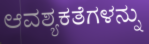
ಆವಶ್ಯಕತೆಗಳನ್ನು